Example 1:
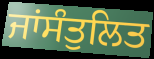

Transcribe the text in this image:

ਜਾਂਸੰਤੁਲਿਤ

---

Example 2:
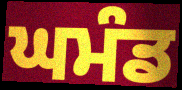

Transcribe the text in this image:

ਘਮੰਡ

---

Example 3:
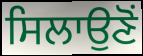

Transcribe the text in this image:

ਸਿਲਾਉਣੋਂ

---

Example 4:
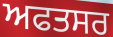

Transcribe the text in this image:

ਅਫਤਸਰ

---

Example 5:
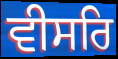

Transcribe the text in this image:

ਵੀਸਰਿ